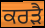
ਕਰੜੈ